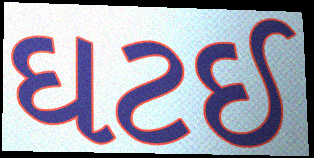
ઘટઈ